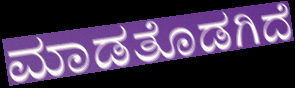
ಮಾಡತೊಡಗಿದೆ